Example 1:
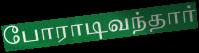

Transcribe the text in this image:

போராடிவந்தார்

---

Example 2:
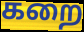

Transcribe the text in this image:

கறை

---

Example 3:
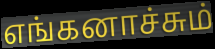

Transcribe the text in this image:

எங்கனாச்சும்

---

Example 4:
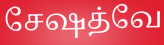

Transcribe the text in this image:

சேஷத்வே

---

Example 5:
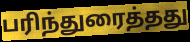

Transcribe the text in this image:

பரிந்துரைத்தது